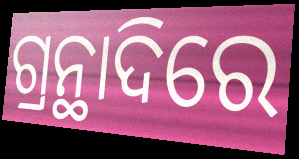
ଗ୍ରନ୍ଥାଦିରେ